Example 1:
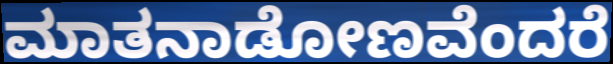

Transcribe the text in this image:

ಮಾತನಾಡೋಣವೆಂದರೆ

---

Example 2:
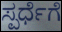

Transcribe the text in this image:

ಸ್ಪರ್ಧೆಗೆ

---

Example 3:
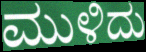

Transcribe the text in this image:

ಮುಳಿದು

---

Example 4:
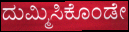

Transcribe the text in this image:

ದುಮ್ಮಿಸಿಕೊಂಡೇ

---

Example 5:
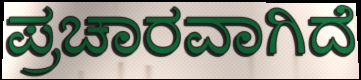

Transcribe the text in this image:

ಪ್ರಚಾರವಾಗಿದೆ